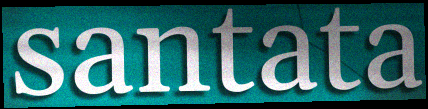
santata